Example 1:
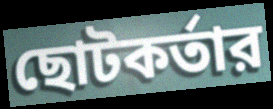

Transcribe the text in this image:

ছোটকর্তার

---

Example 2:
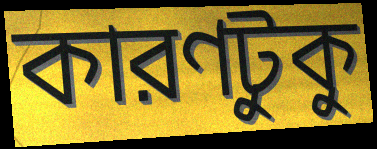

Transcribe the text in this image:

কারণটুকু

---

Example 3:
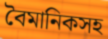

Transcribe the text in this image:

বৈমানিকসহ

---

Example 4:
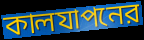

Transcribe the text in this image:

কালযাপনের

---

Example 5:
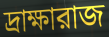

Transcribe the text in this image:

দ্রাক্ষারাজ